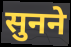
सुनने